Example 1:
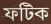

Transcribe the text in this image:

ফটিক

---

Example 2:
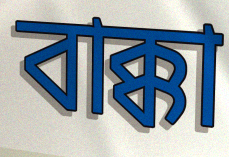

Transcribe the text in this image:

বাক্কা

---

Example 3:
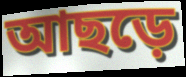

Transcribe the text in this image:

আছড়ে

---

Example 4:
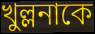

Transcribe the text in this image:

খুল্লনাকে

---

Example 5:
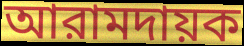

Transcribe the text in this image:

আরামদায়ক